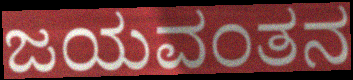
ಜಯವಂತನ